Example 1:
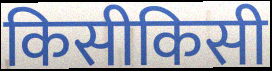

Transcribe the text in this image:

किसीकिसी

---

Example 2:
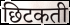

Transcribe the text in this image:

छिटकती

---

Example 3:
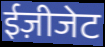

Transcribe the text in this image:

ईज़ीजेट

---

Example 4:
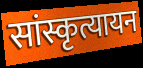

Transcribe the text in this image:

सांस्कृत्यायन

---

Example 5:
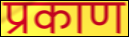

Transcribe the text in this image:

प्रकाण